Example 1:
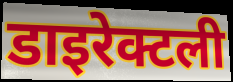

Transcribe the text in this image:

डाइरेक्टली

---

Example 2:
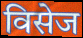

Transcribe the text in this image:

विसेज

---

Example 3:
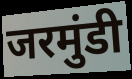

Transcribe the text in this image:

जरमुंडी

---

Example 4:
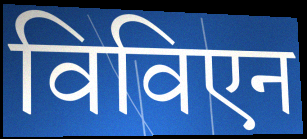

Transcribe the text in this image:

विविएन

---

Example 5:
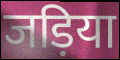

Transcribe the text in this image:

जड़िया